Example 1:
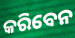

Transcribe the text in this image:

କରିବେନ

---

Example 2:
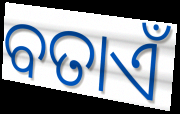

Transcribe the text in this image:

ବତାଏଁ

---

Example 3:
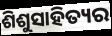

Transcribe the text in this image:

ଶିଶୁସାହିତ୍ୟର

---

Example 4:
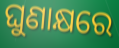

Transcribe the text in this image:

ଘୁଣାକ୍ଷରେ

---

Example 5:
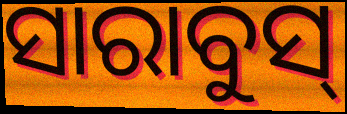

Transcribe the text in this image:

ସାରାବୁସ୍